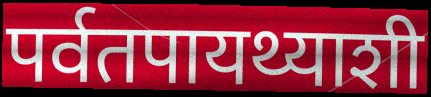
पर्वतपायथ्याशी